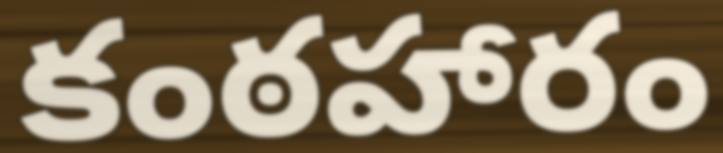
కంఠహారం